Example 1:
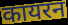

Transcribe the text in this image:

कायरन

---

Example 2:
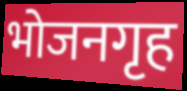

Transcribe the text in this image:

भोजनगृह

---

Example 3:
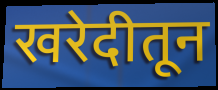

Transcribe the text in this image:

खरेदीतून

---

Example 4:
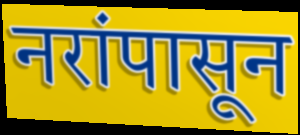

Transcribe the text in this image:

नरांपासून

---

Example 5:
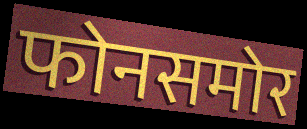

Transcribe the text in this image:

फोनसमोर